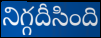
నిగ్గదీసింది